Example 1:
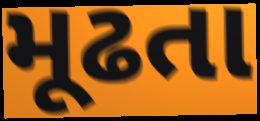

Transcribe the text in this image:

મૂઢતા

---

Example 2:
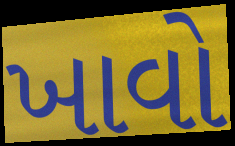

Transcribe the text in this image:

ખાવો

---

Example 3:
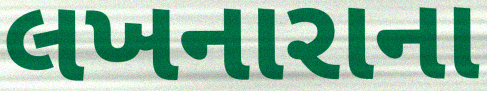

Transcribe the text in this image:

લખનારાના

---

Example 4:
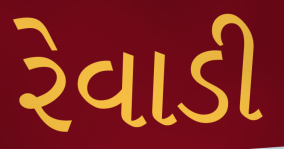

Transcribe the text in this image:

રેવાડી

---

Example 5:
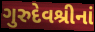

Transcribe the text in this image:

ગુરુદેવશ્રીનાં